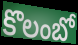
కొలంబో